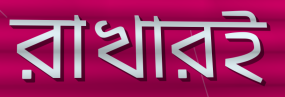
রাখারই